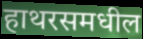
हाथरसमधील